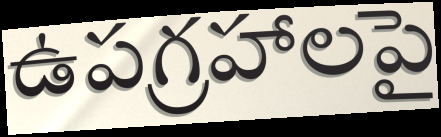
ఉపగ్రహాలపై